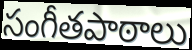
సంగీతపాఠాలు